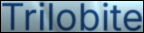
Trilobite